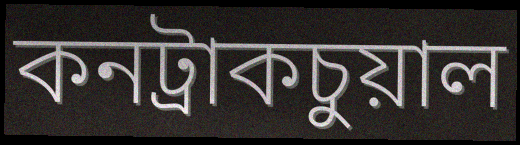
কনট্রাকচুয়াল